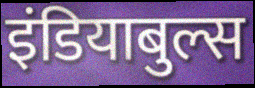
इंडियाबुल्‍स